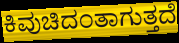
ಕಿವುಚಿದಂತಾಗುತ್ತದೆ